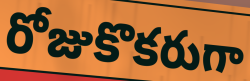
రోజుకొకరుగా